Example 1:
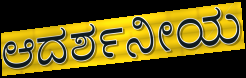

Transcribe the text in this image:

ಆದರ್ಶನೀಯ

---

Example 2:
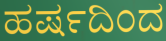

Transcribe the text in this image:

ಹರ್ಷದಿಂದ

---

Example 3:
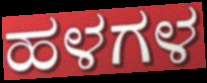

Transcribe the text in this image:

ಹಳಗಳ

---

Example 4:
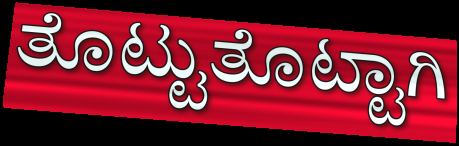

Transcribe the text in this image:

ತೊಟ್ಟುತೊಟ್ಟಾಗಿ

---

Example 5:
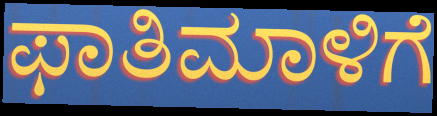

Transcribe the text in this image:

ಫಾತಿಮಾಳಿಗೆ